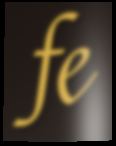
fe